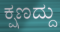
ಕ್ಷಣದ್ದು